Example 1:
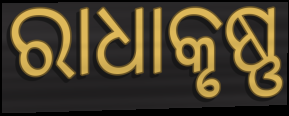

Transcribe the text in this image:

ରାଧାକୃଷ୍ଣ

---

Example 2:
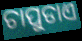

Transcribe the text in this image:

ଚାପୁଡାଏ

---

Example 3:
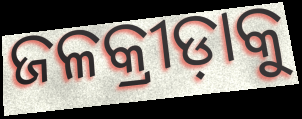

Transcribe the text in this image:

ଜଳକ୍ରୀଡ଼ାକୁ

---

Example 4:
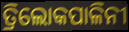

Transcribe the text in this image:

ତ୍ରିଲୋକପାଳିନୀ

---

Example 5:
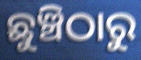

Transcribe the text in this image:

ଛୁଞ୍ଚିଠାରୁ